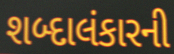
શબ્દાલંકારની